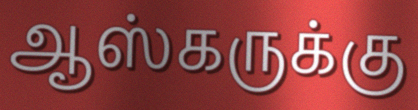
ஆஸ்கருக்கு